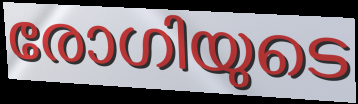
രോഗിയുടെ